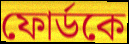
ফোর্ডকে